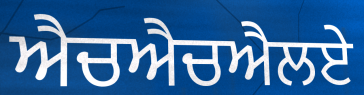
ਐਚਐਚਐਲਏ